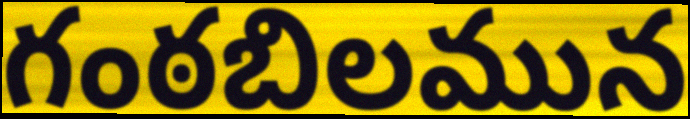
గంఠబిలమున